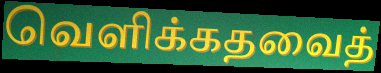
வெளிக்கதவைத்